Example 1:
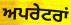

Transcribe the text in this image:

ਅਪਰੇਟਰਾਂ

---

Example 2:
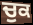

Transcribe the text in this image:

ਚੁਕ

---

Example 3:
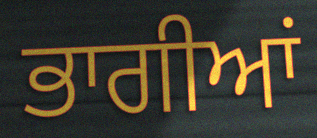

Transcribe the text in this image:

ਭਾਗੀਆਂ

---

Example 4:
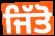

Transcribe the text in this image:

ਜਿੱਤੋ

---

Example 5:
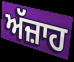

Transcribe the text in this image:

ਅੱਜ਼ਾਹ